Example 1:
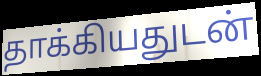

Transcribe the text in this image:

தாக்கியதுடன்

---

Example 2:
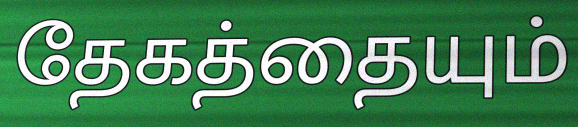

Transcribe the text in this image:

தேகத்தையும்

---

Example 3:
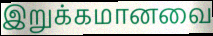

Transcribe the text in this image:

இறுக்கமானவை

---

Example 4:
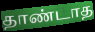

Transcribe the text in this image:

தாண்டாத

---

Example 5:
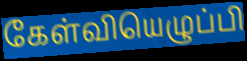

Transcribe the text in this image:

கேள்வியெழுப்பி